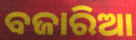
ବଜାରିଆ